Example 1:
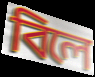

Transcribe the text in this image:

বিলে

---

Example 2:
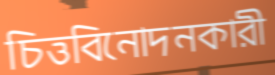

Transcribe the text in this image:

চিত্তবিনোদনকারী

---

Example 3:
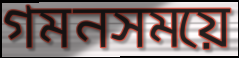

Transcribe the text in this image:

গমনসময়ে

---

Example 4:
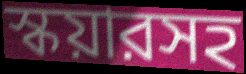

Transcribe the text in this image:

স্কয়ারসহ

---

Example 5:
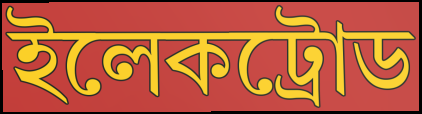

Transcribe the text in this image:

ইলেকট্রোড